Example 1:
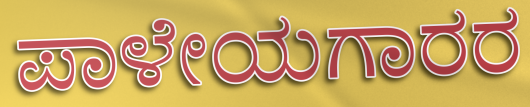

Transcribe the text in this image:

ಪಾಳೇಯಗಾರರ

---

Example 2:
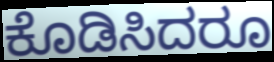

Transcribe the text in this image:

ಕೊಡಿಸಿದರೂ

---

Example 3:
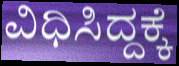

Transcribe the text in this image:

ವಿಧಿಸಿದ್ದಕ್ಕೆ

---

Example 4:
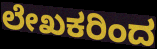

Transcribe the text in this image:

ಲೇಖಕರಿಂದ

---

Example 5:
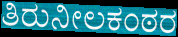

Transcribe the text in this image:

ತಿರುನೀಲಕಂಠರ